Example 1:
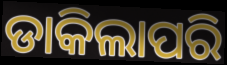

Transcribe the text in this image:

ଡାକିଲାପରି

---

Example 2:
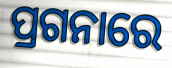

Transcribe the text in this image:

ପ୍ରଗନାରେ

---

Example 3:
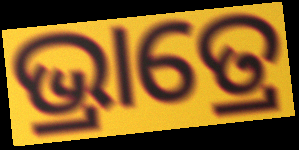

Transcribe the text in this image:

ଭ୍ରାତ୍ରେ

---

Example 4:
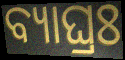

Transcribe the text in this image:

ବ୍ୟାଘ୍ରଃ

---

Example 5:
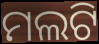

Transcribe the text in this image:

ମଲଟି